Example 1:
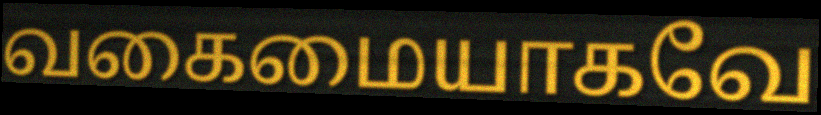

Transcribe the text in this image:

வகைமையாகவே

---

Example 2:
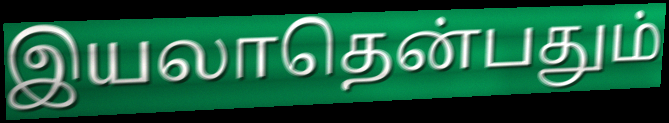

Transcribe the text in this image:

இயலாதென்பதும்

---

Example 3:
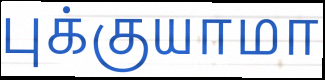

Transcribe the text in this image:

புக்குயாமா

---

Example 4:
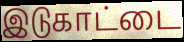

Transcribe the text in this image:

இடுகாட்டை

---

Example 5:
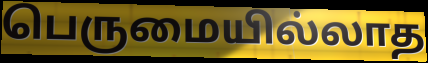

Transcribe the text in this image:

பெருமையில்லாத